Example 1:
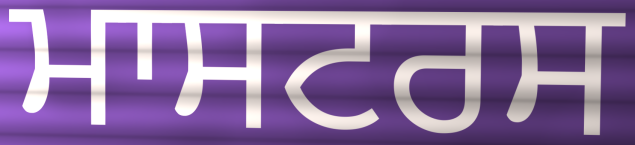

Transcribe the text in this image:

ਮਾਸਟਰਸ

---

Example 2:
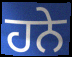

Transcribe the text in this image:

ਹਨੇ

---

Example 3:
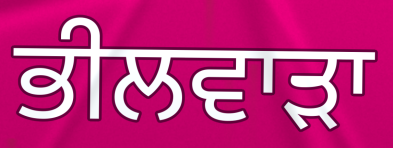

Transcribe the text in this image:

ਭੀਲਵਾੜਾ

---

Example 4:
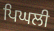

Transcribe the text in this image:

ਪਿਘਲੀ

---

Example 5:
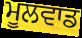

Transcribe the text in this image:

ਮੂਲਵਾਡ